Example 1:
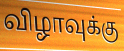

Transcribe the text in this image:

விழாவுக்கு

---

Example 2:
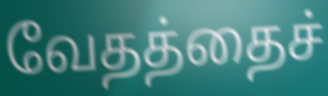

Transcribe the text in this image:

வேதத்தைச்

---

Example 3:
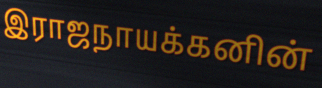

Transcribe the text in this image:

இராஜநாயக்கனின்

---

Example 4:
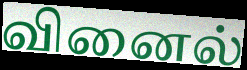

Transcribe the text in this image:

வினைல்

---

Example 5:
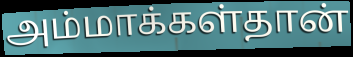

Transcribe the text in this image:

அம்மாக்கள்தான்